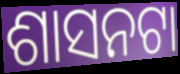
ଶାସନଟା